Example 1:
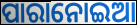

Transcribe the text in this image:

ପାରାନୋଇଆ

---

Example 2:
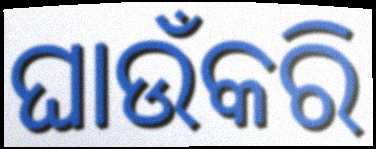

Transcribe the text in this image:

ଘାଉଁକରି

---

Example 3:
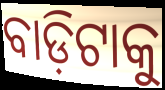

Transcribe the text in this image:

ବାଡ଼ିଟାକୁ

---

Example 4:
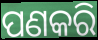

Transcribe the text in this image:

ପଣକରି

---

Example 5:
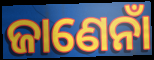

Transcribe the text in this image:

ଜାଣେନାଁ